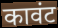
कावंट